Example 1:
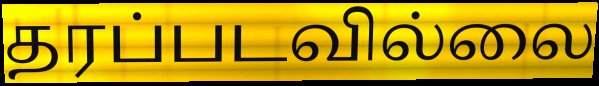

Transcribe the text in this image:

தரப்படவில்லை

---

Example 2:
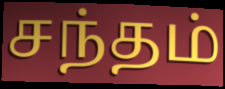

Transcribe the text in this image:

சந்தம்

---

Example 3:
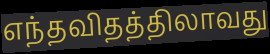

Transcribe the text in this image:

எந்தவிதத்திலாவது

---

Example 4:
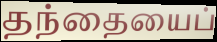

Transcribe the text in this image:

தந்தையைப்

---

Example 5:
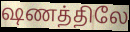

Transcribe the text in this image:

ஷணத்திலே